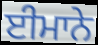
ਈਮਾਨੇ